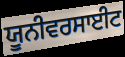
ਯੂਨੀਵਰਸਾਈਟ